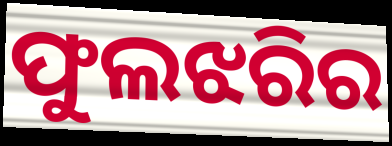
ଫୁଲଝରିର